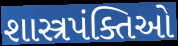
શાસ્ત્રપંક્તિઓ